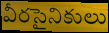
వీరసైనికులు